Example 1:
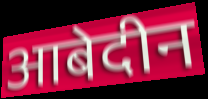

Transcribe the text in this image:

आबेदीन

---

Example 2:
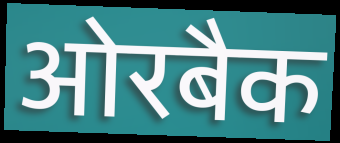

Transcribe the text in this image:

ओरबैक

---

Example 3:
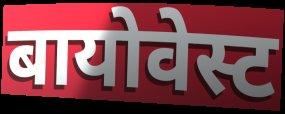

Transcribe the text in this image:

बायोवेस्ट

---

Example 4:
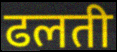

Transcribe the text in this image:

ढलती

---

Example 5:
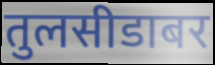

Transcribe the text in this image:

तुलसीडाबर